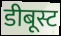
डीबूस्ट